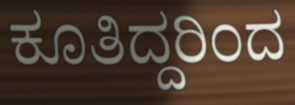
ಕೂತಿದ್ದರಿಂದ